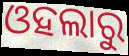
ଓହଲାରୁ